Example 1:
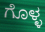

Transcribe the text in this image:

ಗೊಳ್ಳ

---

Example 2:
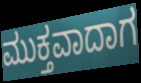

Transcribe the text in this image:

ಮುಕ್ತವಾದಾಗ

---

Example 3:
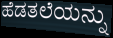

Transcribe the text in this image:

ಹೆಡತಲೆಯನ್ನು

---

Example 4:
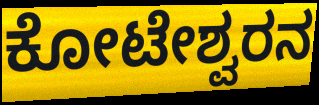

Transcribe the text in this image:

ಕೋಟೇಶ್ವರನ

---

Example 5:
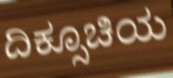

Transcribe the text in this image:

ದಿಕ್ಸೂಚಿಯ